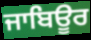
ਜਾਬਿਊਰ